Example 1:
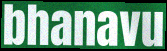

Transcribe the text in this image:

bhanavu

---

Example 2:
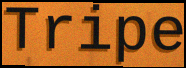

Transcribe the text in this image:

Tripe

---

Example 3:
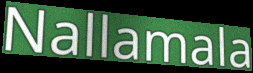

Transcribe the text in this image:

Nallamala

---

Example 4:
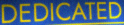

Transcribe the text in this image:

DEDICATED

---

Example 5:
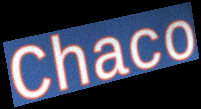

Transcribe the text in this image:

Chaco